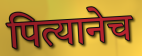
पित्यानेच